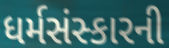
ધર્મસંસ્કારની